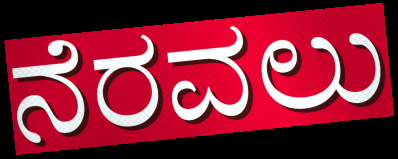
ನೆರವಲು